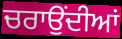
ਚਰਾਉਂਦੀਆਂ